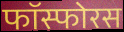
फॉस्फोरस